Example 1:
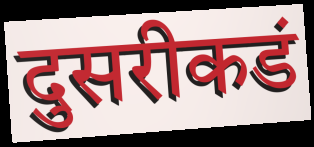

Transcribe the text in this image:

दुसरीकडं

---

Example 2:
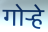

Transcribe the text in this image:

गोऱ्हे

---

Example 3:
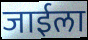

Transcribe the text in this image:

जाईला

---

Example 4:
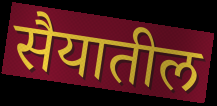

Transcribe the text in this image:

सैयातील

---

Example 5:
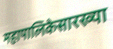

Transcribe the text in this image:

महापालिकेसारख्या